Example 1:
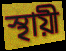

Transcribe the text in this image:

স্থায়ী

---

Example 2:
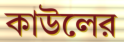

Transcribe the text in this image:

কাউলের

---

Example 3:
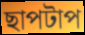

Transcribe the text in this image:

ছাপটাপ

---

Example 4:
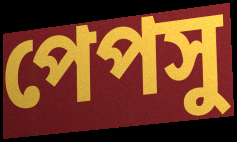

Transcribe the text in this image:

পেপসু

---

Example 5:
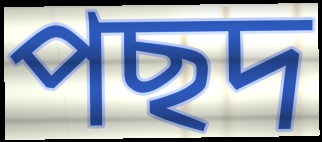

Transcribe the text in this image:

পছদ